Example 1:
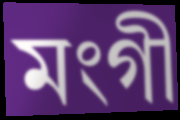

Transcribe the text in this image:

মংগী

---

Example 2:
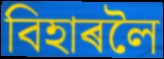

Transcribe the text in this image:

বিহাৰলৈ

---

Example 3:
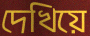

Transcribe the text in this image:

দেখিয়ে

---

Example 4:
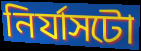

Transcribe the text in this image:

নিৰ্যাসটো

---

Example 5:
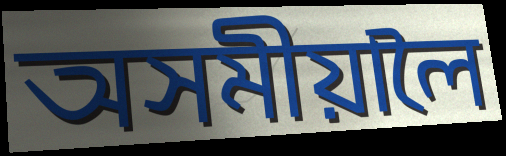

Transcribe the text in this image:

অসমীয়ালৈ